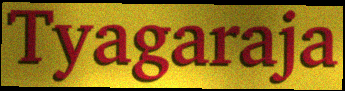
Tyagaraja